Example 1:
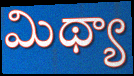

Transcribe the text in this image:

మిథ్యా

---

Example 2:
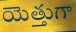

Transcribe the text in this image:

యెత్తుగా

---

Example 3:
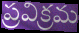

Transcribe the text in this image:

ప్రవిక్రమ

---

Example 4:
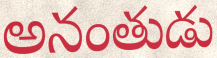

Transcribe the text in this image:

అనంతుడు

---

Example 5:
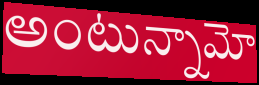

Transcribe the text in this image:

అంటున్నామో